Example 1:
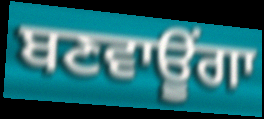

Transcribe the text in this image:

ਬਣਵਾਊਂਗਾ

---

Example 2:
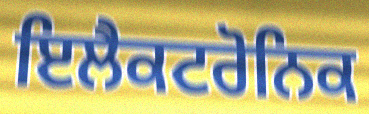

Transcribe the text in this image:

ਇਲੈਕਟਰੋਨਿਕ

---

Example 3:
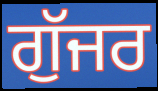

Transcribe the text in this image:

ਗੁੱਜਰ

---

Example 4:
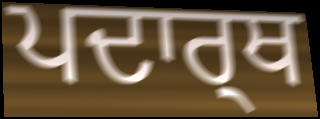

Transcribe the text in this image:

ਪਦਾਰ੍ਥ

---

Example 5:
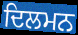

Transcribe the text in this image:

ਦਿਲਮਨ